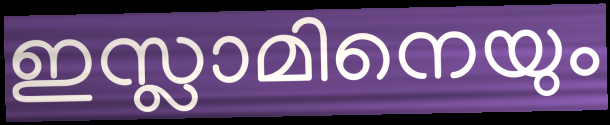
ഇസ്ലാമിനെയും